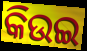
କିଉଇ